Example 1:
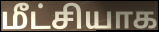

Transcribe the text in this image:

மீட்சியாக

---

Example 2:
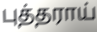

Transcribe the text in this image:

புத்தராய்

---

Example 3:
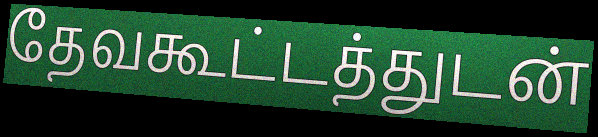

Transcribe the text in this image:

தேவகூட்டத்துடன்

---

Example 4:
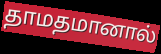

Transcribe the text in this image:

தாமதமானால்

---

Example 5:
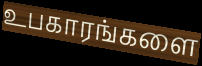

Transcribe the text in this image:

உபகாரங்களை